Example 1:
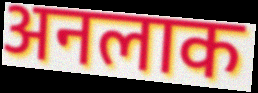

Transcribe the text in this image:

अनलाक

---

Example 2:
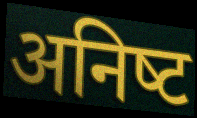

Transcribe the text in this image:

अनिष्‍ट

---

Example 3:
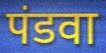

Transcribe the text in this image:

पंडवा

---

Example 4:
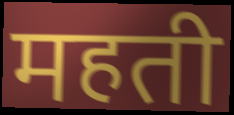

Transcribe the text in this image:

महती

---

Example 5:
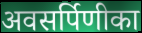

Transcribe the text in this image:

अवसर्पिणीका